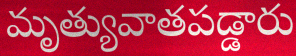
మృత్యువాతపడ్డారు